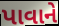
પાવાને